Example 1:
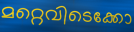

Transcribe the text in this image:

മറ്റെവിടെക്കോ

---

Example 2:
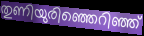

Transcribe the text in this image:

തുണിയുരിഞ്ഞെറിഞ്ഞ്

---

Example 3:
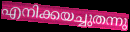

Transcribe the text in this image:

എനിക്കയച്ചുതന്നു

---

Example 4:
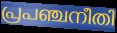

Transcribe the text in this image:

പ്രപഞ്ചനീതി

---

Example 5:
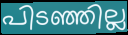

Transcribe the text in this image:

പിടഞ്ഞില്ല